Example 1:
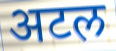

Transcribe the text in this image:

अटल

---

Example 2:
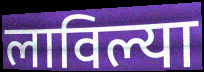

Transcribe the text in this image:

लाविल्या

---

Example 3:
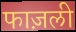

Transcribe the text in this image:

फाज़ली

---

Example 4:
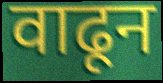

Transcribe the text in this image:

वाढून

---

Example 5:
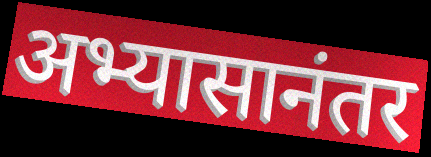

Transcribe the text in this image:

अभ्यासानंतर